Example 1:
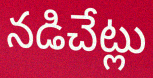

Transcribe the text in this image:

నడిచేట్లు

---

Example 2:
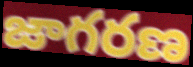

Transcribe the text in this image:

జాగరణ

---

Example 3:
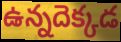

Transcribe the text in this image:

ఉన్నదెక్కడ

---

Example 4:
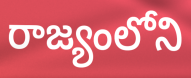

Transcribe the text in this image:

రాజ్యంలోని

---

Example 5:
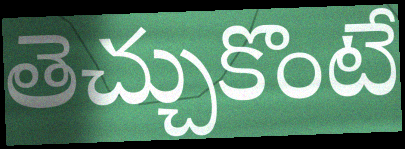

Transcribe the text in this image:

తెచ్చుకొంటే